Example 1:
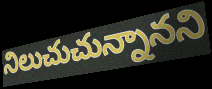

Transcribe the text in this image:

నిలుచుచున్నానని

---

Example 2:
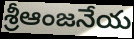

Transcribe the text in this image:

శ్రీఆంజనేయ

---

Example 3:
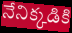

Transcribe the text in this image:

నేనిక్కడికి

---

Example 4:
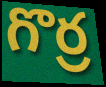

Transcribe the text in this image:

గొర్ర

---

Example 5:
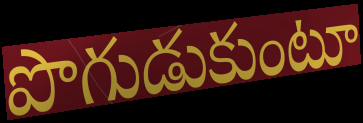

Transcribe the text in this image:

పొగుడుకుంటూ